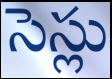
సెస్లు